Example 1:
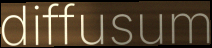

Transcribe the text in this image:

diffusum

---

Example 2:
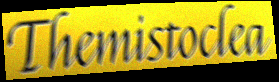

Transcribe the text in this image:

Themistoclea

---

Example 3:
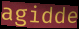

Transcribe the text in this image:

agidde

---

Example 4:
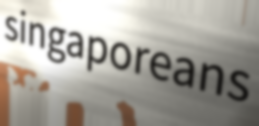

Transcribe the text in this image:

singaporeans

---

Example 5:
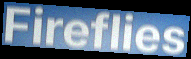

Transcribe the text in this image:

Fireflies